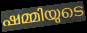
ഷമ്മിയുടെ